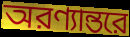
অরণ্যান্তরে